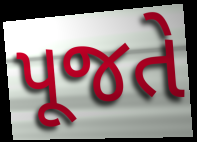
પૂજતે